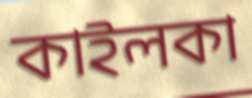
কাইলকা